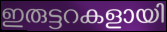
ഇരുട്ടറകളായി